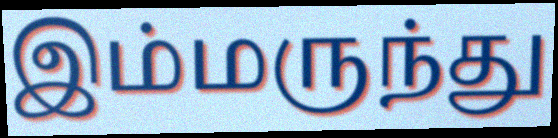
இம்மருந்து